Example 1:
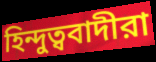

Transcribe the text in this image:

হিন্দুত্ববাদীরা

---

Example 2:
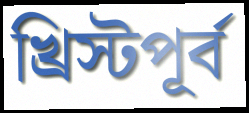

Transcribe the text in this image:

খ্রিস্টপূর্ব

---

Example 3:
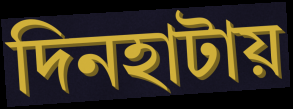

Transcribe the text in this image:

দিনহাটায়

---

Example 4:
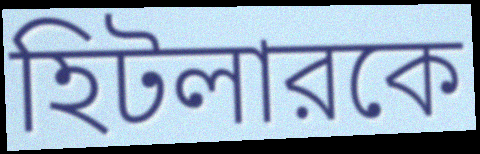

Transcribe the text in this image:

হিটলারকে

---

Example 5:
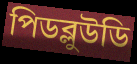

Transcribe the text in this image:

পিডব্লুউডি